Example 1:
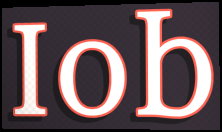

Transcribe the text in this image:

Iob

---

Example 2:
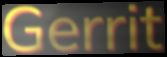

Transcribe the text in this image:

Gerrit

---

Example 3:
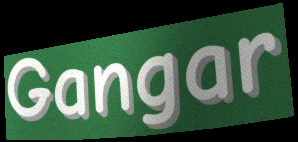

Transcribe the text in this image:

Gangar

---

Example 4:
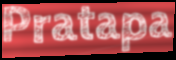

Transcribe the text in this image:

Pratapa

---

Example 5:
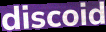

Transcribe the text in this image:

discoid